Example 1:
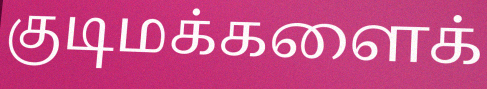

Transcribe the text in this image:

குடிமக்களைக்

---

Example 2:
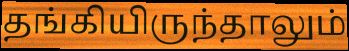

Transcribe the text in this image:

தங்கியிருந்தாலும்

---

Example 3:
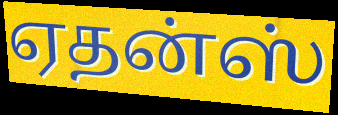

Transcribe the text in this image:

ஏதன்ஸ்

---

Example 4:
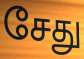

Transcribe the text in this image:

சேது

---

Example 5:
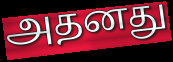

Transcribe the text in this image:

அதனது